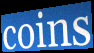
coins